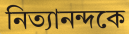
নিত্যানন্দকে